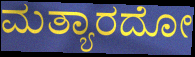
ಮತ್ಯಾರದೋ